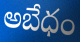
అబేధం